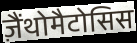
ज़ैंथोमैटोसिस